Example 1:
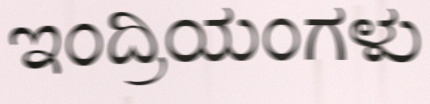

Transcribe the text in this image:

ಇಂದ್ರಿಯಂಗಳು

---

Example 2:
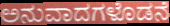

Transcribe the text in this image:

ಅನುವಾದಗಳೊಡನೆ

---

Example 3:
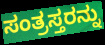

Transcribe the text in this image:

ಸಂತ್ರಸ್ತರನ್ನು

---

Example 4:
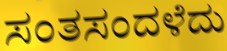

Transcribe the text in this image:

ಸಂತಸಂದಳೆದು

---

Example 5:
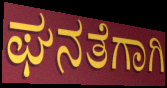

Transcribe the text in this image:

ಘನತೆಗಾಗಿ